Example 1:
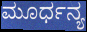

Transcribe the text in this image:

ಮೂರ್ಧನ್ಯ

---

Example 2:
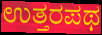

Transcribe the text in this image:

ಉತ್ತರಪಥ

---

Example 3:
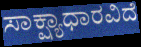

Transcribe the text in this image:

ಸಾಕ್ಷ್ಯಾಧಾರವಿದೆ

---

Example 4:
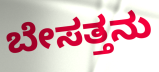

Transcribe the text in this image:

ಬೇಸತ್ತನು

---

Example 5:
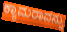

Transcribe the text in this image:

ಕ್ಯಾಮರಾವನ್ನು